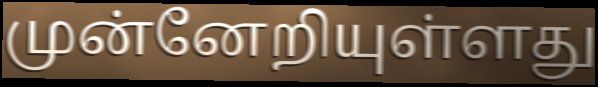
முன்னேறியுள்ளது